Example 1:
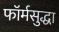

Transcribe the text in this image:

फॉर्मसुद्धा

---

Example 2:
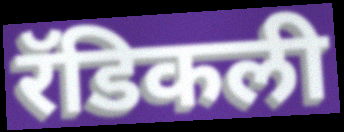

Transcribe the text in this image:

रॅडिकली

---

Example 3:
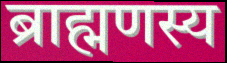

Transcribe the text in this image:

ब्राह्मणस्य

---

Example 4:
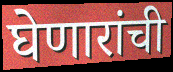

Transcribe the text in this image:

घेणारांची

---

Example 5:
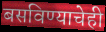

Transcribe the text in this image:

बसविण्याचेही